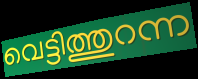
വെട്ടിത്തുറന്ന